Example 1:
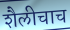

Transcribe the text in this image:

शैलीचाच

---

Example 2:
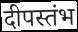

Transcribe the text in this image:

दीपस्तंभ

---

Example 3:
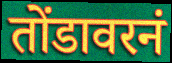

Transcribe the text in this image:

तोंडावरनं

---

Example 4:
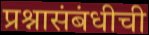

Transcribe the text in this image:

प्रश्नासंबंधीची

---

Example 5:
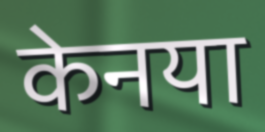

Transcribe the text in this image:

केनया